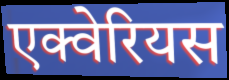
एक्वेरियस